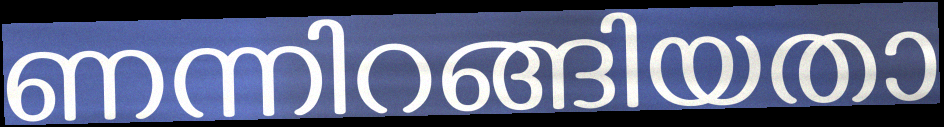
ണന്നിറങ്ങിയതാ